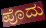
ಪೊದು